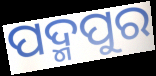
ପଦ୍ମପୁର